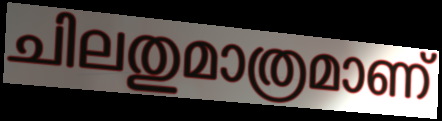
ചിലതുമാത്രമാണ്